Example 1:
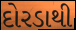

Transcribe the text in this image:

દોરડાથી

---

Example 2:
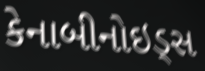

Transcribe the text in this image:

કેનાબીનોઇડ્સ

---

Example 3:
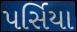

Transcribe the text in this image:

પર્સિયા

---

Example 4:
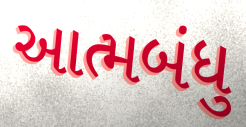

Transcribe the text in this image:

આત્મબંધુ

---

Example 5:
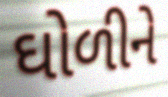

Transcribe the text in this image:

ઘોળીને